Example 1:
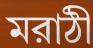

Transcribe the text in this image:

মরাঠী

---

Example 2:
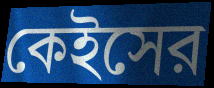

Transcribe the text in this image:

কেইসের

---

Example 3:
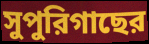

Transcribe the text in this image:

সুপুরিগাছের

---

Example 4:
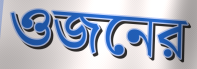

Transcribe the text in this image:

ওজনের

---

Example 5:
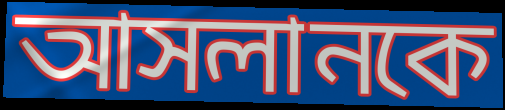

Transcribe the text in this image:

আসলানকে